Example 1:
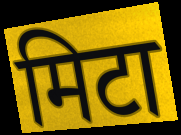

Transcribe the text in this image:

मिटा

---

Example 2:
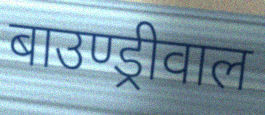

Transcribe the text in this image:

बाउण्ड्रीवाल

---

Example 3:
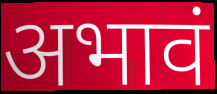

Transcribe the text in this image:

अभावं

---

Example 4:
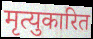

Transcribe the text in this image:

मृत्युकारित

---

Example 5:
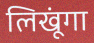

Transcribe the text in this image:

लिखूंगा